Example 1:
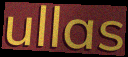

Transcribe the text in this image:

ullas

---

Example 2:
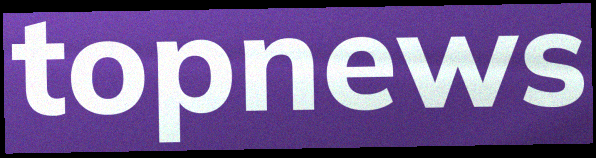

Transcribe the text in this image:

topnews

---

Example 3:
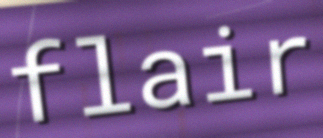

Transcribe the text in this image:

flair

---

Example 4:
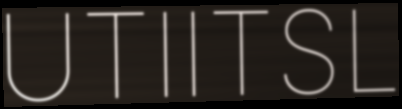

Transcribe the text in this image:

UTIITSL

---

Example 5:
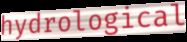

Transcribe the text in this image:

hydrological